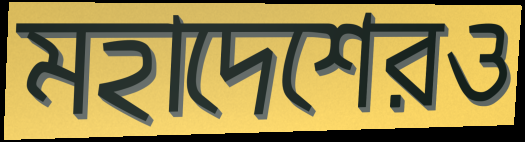
মহাদেশেরও